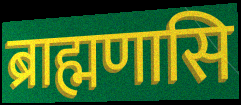
ब्राह्मणासि